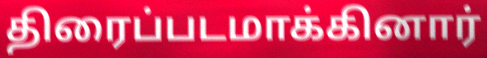
திரைப்படமாக்கினார்